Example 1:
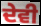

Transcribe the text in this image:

ਦੇਵੀ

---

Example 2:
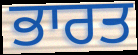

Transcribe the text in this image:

ਭਾਰਤ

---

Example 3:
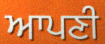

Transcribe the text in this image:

ਆਪਣੀ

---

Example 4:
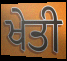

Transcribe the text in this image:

ਖੇਤੀ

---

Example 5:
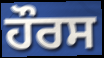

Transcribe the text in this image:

ਹੌਰਸ